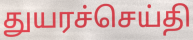
துயரச்செய்தி